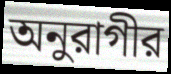
অনুরাগীর